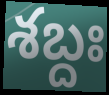
శబ్దః